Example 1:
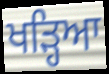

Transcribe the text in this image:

ਖੜ੍ਹਿਆ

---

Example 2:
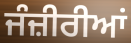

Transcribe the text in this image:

ਜੰਜ਼ੀਰੀਆਂ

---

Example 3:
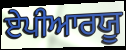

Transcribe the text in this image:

ਏਪੀਆਰਯੂ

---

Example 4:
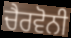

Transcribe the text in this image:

ਚੈਰਵੋਨੀ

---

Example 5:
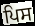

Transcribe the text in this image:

ਪਿਸ